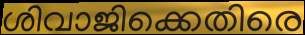
ശിവാജിക്കെതിരെ